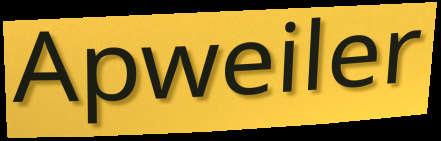
Apweiler